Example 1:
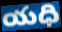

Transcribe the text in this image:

యధి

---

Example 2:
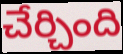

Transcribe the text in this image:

చేర్చింది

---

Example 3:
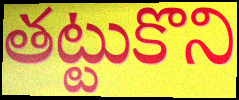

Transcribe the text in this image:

తట్టుకొని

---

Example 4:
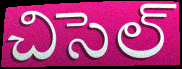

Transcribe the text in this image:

చిసెల్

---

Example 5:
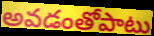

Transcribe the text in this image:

అవడంతోపాటు